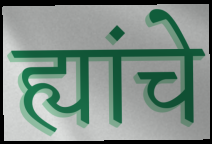
ह्यांचे